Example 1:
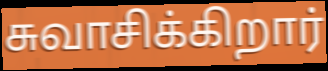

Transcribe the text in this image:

சுவாசிக்கிறார்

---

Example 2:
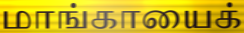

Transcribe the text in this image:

மாங்காயைக்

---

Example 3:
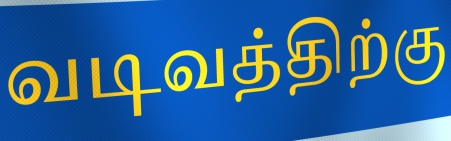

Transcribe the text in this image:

வடிவத்திற்கு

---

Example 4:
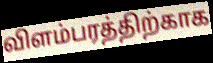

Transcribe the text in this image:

விளம்பரத்திற்காக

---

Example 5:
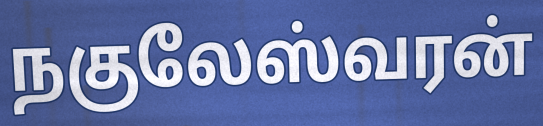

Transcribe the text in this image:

நகுலேஸ்வரன்